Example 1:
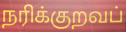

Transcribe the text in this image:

நரிக்குறவப்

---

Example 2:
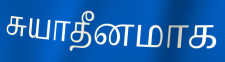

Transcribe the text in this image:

சுயாதீனமாக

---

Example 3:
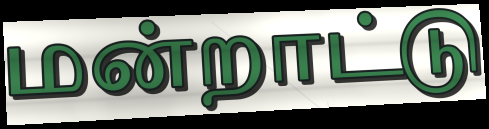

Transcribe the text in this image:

மன்றாட்டு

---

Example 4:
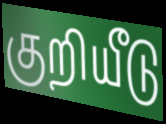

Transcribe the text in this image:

குறியீடு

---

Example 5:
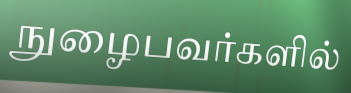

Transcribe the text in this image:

நுழைபவர்களில்